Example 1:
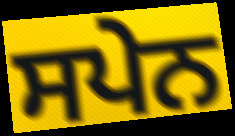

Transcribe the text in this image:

ਸਪੇਨ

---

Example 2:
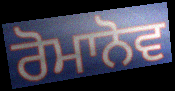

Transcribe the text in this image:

ਰੋਮਾਨੋਵ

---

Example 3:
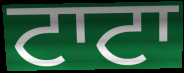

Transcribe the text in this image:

ਟਾਟਾ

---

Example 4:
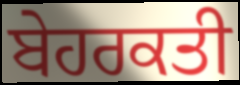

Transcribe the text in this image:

ਬੇਹਰਕਤੀ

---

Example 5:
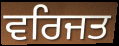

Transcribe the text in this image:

ਵਰਿਜਤ